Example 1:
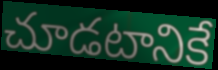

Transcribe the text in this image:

చూడటానికే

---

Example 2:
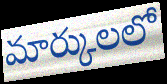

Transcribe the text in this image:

మార్కులలో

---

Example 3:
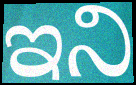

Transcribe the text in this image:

ఇని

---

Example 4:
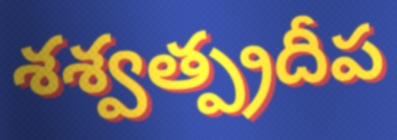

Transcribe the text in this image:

శశ్వత్ప్రదీప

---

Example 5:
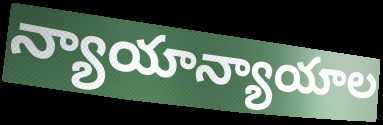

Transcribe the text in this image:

న్యాయాన్యాయాల